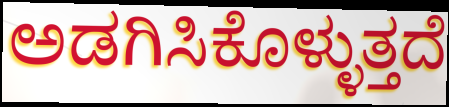
ಅಡಗಿಸಿಕೊಳ್ಳುತ್ತದೆ